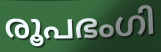
രൂപഭംഗി